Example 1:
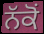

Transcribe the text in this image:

ਨੱਕੋਂ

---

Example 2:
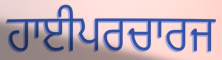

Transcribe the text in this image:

ਹਾਈਪਰਚਾਰਜ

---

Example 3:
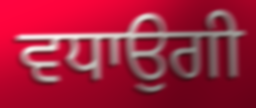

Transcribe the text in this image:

ਵਧਾਉਗੀ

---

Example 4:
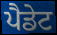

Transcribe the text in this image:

ਪੈਡੇਟ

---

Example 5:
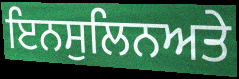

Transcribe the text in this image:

ਇਨਸੁਲਿਨਅਤੇ